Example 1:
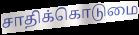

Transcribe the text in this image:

சாதிக்கொடுமை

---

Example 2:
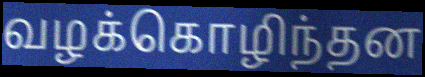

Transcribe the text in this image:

வழக்கொழிந்தன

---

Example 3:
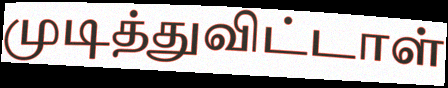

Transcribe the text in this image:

முடித்துவிட்டாள்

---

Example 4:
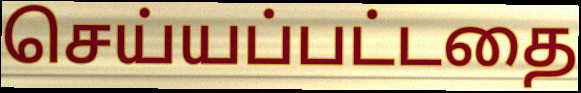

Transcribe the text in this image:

செய்யப்பட்டதை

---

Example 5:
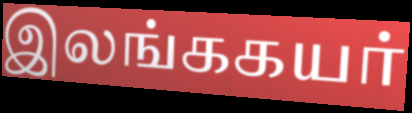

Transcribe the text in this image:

இலங்ககயர்